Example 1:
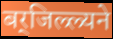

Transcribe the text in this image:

बर्जिल्ल्यने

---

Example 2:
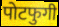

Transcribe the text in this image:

पोटफुगी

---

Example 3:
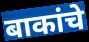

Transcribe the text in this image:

बाकांचे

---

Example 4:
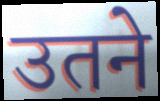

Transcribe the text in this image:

उतने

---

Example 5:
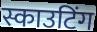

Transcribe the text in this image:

स्काउटिंग